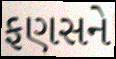
ફણસને